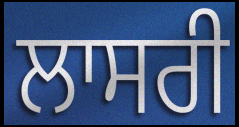
ਲਾਸਰੀ